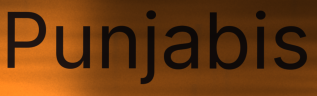
Punjabis